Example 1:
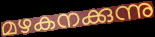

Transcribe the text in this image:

മഴകനക്കുന്നു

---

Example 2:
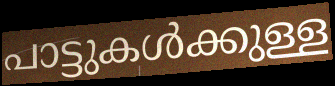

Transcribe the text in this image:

പാട്ടുകൾക്കുള്ള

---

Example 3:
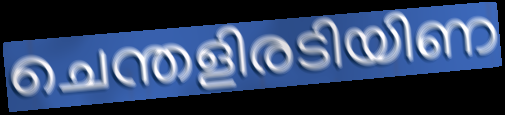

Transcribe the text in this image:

ചെന്തളിരടിയിണ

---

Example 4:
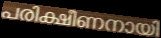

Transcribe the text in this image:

പരിക്ഷീണനായി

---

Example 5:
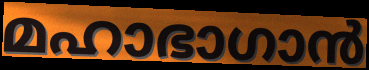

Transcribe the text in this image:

മഹാഭാഗാൻ